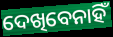
ଦେଖିବେନାହିଁ